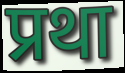
प्रथा